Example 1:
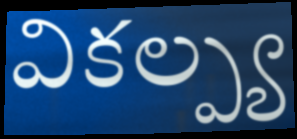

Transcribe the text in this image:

వికల్ప్య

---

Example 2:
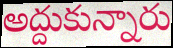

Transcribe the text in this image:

అద్దుకున్నారు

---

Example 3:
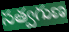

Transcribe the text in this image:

సత్వగుణ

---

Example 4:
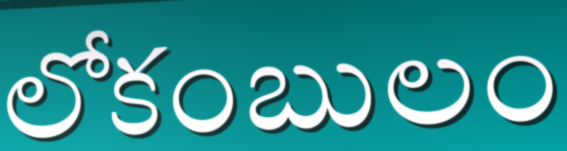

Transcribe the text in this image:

లోకంబులం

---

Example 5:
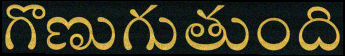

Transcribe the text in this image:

గొణుగుతుంది